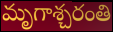
మృగాశ్చరంతి